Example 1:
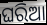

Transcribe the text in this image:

ଘରିଆ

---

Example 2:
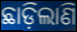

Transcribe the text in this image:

ଛାଡ଼ିଲାଣି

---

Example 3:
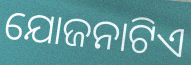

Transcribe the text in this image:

ଯୋଜନାଟିଏ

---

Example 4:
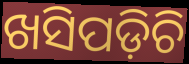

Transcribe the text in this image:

ଖସିପଡ଼ିଚି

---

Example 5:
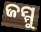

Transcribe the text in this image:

ଜମ୍ମୁ